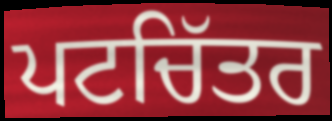
ਪਟਚਿੱਤਰ